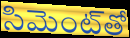
సిమెంట్‌తో